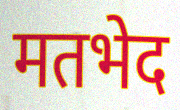
मतभेद